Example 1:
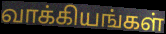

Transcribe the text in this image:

வாக்கியங்கள்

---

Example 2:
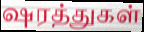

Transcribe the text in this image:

ஷரத்துகள்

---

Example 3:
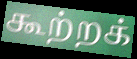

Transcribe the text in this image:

கூற்றக்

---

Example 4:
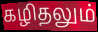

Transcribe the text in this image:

கழிதலும்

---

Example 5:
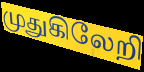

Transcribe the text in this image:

முதுகிலேறி